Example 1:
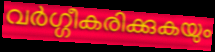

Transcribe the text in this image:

വർഗ്ഗീകരിക്കുകയും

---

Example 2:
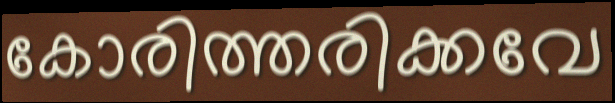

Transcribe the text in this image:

കോരിത്തരിക്കവേ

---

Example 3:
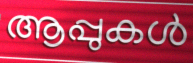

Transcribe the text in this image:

ആപ്പുകൾ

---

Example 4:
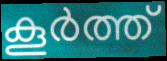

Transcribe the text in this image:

കൂർത്ത്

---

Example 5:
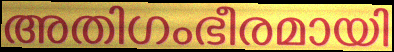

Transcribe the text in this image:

അതിഗംഭീരമായി